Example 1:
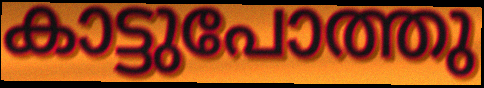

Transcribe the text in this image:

കാട്ടുപോത്തു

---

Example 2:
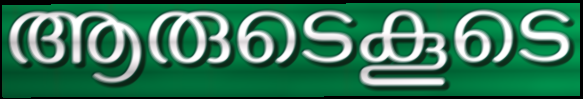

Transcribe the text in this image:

ആരുടെകൂടെ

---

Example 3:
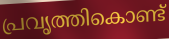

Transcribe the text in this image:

പ്രവൃത്തികൊണ്ട്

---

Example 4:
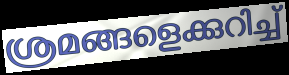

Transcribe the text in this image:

ശ്രമങ്ങളെക്കുറിച്ച്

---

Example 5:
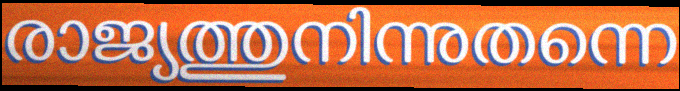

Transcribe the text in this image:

രാജ്യത്തുനിന്നുതന്നെ